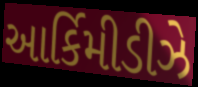
આર્કિમીડીઝે